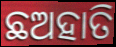
ଛଅହାତି